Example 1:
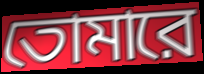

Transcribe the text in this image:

তোমারে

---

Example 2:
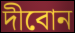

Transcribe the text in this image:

দীবোন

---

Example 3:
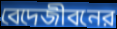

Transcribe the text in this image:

বেদেজীবনের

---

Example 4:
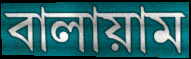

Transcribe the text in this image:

বালায়াম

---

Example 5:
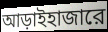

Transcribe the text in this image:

আড়াইহাজারে